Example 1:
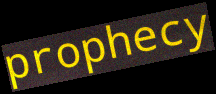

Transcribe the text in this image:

prophecy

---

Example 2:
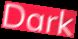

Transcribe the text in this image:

Dark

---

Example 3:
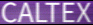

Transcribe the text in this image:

CALTEX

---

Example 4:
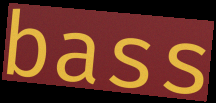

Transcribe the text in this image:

bass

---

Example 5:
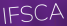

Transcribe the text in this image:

IFSCA